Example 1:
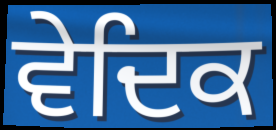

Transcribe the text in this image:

ਵੇਦਿਕ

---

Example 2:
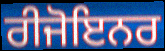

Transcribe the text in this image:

ਰੀਜੋਇਨਰ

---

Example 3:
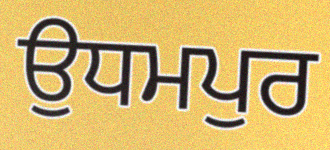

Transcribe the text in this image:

ਉਧਮਪੁਰ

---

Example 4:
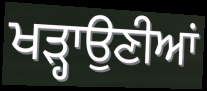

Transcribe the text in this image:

ਖੜ੍ਹਾਉਣੀਆਂ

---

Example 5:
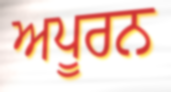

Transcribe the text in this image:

ਅਪੂਰਨ